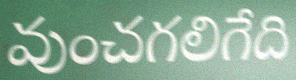
వుంచగలిగేది